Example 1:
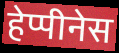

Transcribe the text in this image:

हेप्पीनेस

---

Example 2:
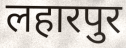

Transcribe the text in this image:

लहारपुर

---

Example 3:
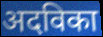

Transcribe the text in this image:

अदविका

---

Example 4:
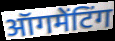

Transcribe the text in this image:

ऑगमेंटिंग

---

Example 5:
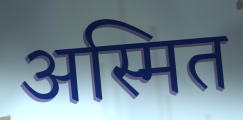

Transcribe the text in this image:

अस्मित